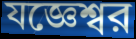
যজ্ঞেশ্বর